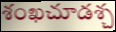
శంఖచూడశ్చ